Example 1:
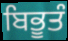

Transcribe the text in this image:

ਬਿਭੂਤੰ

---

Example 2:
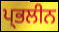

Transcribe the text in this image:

ਪ੍ਭਲੀਨ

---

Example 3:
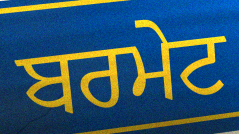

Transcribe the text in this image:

ਬਰਮੇਟ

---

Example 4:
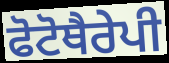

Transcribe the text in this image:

ਫੋਟੋਥੈਰੇਪੀ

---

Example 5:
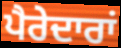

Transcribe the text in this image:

ਪੈਰੇਦਾਰਾਂ